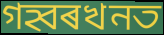
গহ্বৰখনত